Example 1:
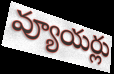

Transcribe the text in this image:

వ్యూయర్లు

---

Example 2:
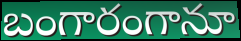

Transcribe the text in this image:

బంగారంగానూ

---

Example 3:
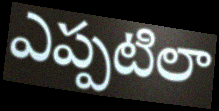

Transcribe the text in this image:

ఎప్పటిలా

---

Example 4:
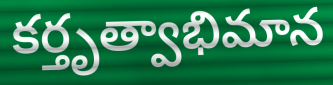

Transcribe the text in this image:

కర్తృత్వాభిమాన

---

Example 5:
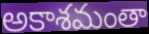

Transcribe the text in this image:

అకాశమంతా